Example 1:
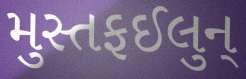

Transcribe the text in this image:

મુસ્તફઈલુન્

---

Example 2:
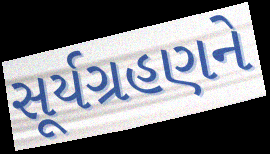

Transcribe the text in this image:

સૂર્યગ્રહણને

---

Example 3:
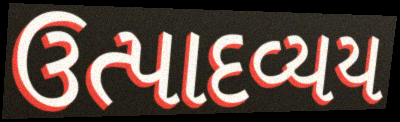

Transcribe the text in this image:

ઉત્પાદવ્યય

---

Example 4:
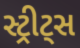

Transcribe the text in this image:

સ્ટ્રીટ્સ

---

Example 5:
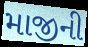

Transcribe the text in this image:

માજીની